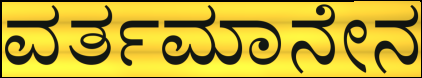
ವರ್ತಮಾನೇನ